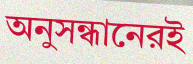
অনুসন্ধানেরই